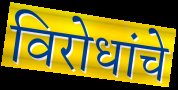
विरोधांचे